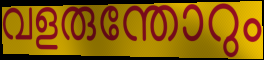
വളരുന്തോറും